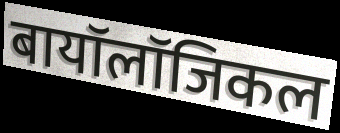
बायॉलॉजिकल